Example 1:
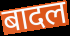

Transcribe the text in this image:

बादल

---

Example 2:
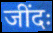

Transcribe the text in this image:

जींदः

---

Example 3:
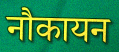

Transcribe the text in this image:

नौकायन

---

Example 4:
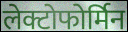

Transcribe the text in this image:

लेक्टोफोर्मिन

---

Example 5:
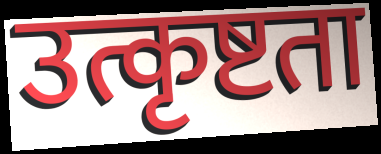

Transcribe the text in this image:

उत्कृष्टता